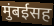
मुंबईसह